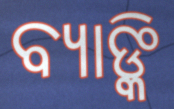
ବ୍ୟାଙ୍କି